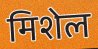
मिशेल